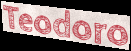
Teodoro